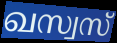
ഖസ്വസ്